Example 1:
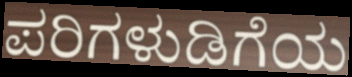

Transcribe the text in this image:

ಪರಿಗಳುಡಿಗೆಯ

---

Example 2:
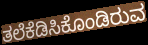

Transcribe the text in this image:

ತಲೆಕೆಡಿಸಿಕೊಂಡಿರುವ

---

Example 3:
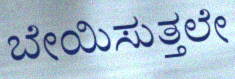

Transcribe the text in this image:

ಬೇಯಿಸುತ್ತಲೇ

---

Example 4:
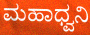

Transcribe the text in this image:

ಮಹಾಧ್ವನಿ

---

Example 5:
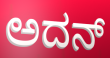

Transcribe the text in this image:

ಅದನ್